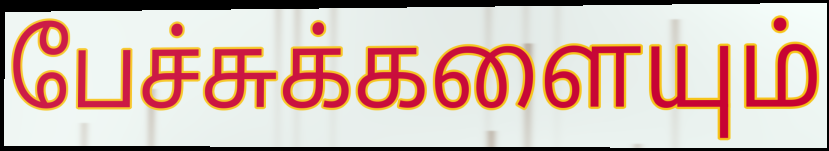
பேச்சுக்களையும்